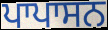
ਪਾਪਾਸਨ